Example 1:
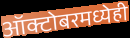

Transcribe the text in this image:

ऑक्टोबरमध्येही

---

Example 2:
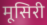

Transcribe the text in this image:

मूसिरी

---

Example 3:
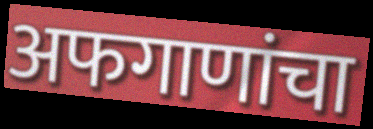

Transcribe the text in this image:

अफगाणांचा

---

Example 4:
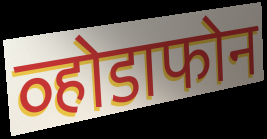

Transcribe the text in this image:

व्होडाफोन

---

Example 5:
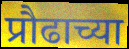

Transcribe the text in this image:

प्रौढाच्या